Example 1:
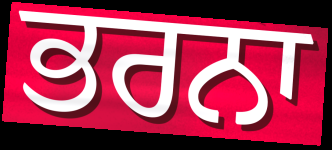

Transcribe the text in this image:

ਭਰਨਾ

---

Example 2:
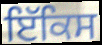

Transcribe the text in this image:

ਇੱਕਿਸ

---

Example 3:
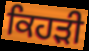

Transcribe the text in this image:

ਕਿਹੜੀ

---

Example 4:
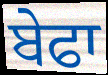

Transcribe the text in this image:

ਬੇਫਾ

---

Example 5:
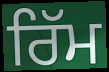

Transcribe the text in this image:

ਰਿੱਮ